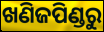
ଖଣିଜପିଣ୍ଡରୁ